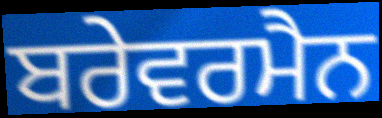
ਬਰੇਵਰਮੈਨ